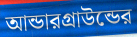
আন্ডারগ্রাউন্ডের